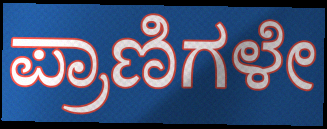
ಪ್ರಾಣಿಗಳೇ